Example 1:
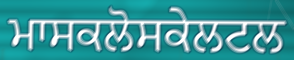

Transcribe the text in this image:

ਮਾਸਕਲੋਸਕੇਲਟਲ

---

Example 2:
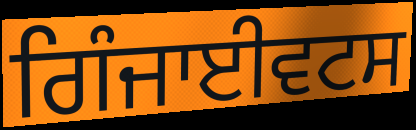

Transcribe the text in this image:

ਗਿੰਜਾਈਵਟਸ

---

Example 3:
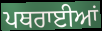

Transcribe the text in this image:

ਪਥਰਾਈਆਂ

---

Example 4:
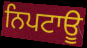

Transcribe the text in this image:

ਨਿਪਟਾਊ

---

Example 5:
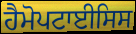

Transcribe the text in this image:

ਹੈਮੋਪਟਾਈਸਿਸ